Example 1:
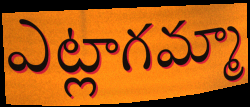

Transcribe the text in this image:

ఎట్లాగమ్మా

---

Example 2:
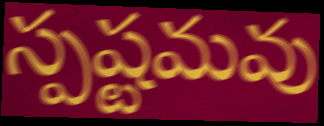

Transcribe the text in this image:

స్పష్టమవు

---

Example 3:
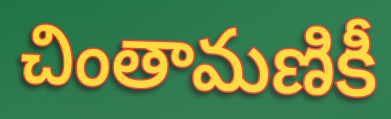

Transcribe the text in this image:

చింతామణికీ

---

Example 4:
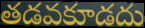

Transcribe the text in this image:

తడవకూడదు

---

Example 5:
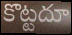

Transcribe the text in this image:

కొట్టదూ